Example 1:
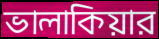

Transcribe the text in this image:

ভালাকিয়ার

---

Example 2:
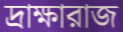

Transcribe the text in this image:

দ্রাক্ষারাজ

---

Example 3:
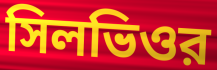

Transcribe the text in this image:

সিলভিওর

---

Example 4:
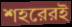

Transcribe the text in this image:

শহরেরই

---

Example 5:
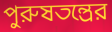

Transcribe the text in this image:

পুরুষতন্ত্রের